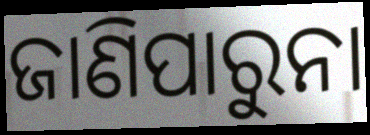
ଜାଣିପାରୁନା